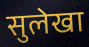
सुलेखा